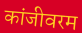
कांजीवरम